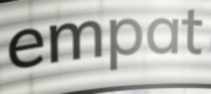
empat